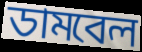
ডামবেল